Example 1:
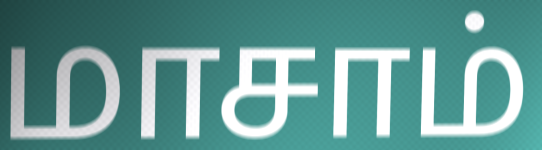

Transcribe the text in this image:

மாசாம்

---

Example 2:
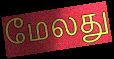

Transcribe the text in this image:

மேலது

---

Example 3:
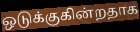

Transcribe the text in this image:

ஒடுக்குகின்றதாக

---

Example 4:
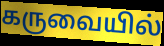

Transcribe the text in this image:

கருவையில்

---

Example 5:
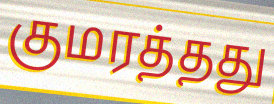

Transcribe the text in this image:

குமரத்தது